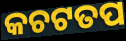
କଚଟତପ